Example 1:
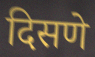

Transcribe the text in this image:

दिसणे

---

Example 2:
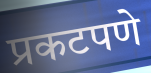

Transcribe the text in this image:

प्रकटपणे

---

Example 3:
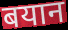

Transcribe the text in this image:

बयान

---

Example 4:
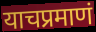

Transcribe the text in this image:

याचप्रमाणं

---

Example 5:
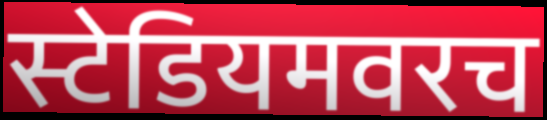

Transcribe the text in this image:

स्टेडियमवरच